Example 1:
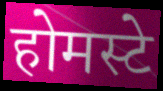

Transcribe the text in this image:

होमस्टे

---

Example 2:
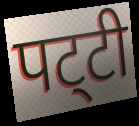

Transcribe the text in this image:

पट्‌टी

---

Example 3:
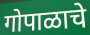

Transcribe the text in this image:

गोपाळाचे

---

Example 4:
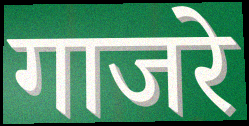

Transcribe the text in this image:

गाजरे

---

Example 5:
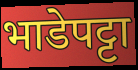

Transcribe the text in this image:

भाडेपट्टा